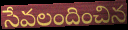
సేవలందించిన